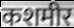
कशमीर